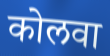
कोलवा